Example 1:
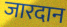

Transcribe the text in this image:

जारदान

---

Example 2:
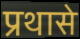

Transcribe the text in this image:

प्रथासे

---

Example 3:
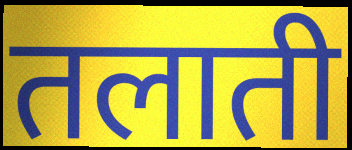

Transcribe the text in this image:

तलाती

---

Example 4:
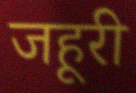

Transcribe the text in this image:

जहूरी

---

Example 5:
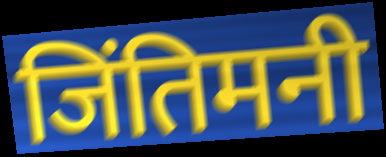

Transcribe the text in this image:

जिंतिमनी